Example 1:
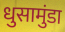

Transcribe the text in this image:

धुसामुंडा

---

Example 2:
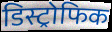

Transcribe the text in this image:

डिस्ट्रोफिक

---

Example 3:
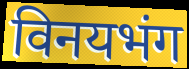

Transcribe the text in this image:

विनयभंग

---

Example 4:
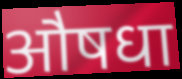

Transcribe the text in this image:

औषधा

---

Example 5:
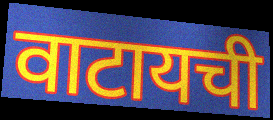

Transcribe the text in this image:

वाटायची